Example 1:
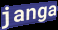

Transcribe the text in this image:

janga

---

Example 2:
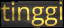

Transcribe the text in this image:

tinggi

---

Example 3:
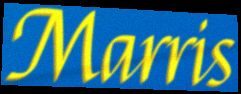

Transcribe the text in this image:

Marris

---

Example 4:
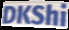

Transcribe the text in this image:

DKShi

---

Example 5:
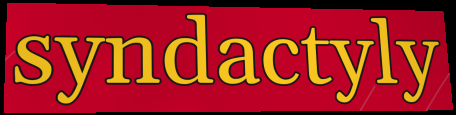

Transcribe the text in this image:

syndactyly